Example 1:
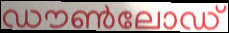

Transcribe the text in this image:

ഡൗൺലോഡ്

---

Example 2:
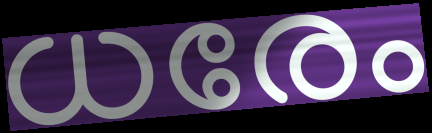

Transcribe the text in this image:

ധരേം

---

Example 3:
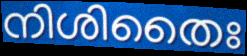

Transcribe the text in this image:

നിശിതൈഃ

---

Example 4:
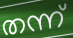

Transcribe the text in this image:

തന്ന്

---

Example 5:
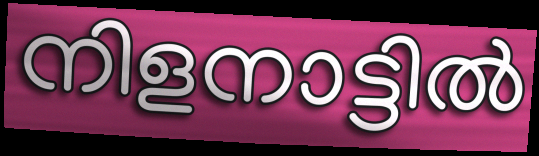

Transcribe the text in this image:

നിളനാട്ടിൽ